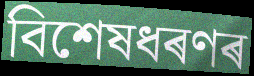
বিশেষধৰণৰ